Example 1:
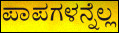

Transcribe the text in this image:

ಪಾಪಗಳನ್ನೆಲ್ಲ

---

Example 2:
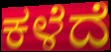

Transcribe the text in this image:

ಕಳೆದೆ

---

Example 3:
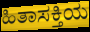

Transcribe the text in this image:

ಹಿತಾಸಕ್ತಿಯ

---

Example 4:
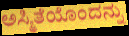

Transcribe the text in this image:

ಅಸ್ಮಿತೆಯೊಂದನ್ನು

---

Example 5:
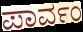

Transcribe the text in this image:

ಪಾರ್ವಂ